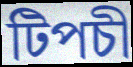
টিপচী